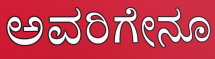
ಅವರಿಗೇನೂ